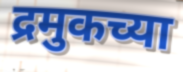
द्रमुकच्या